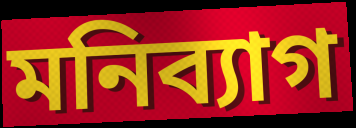
মনিব্যাগ